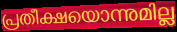
പ്രതീക്ഷയൊന്നുമില്ല